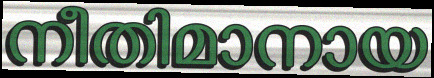
നീതിമാനായ